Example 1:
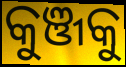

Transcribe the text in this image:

କୁଞ୍ଜକୁ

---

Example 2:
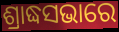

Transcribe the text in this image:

ଶ୍ରାଦ୍ଧସଭାରେ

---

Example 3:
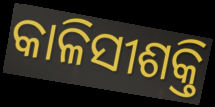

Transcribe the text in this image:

କାଳିସୀଶକ୍ତି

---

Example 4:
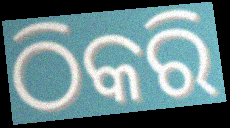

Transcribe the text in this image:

ଠିକରି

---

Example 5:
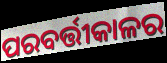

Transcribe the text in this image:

ପରବର୍ତ୍ତୀକାଳର